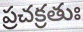
ప్రచక్రతుః